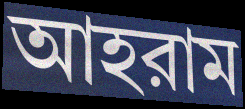
আহরাম